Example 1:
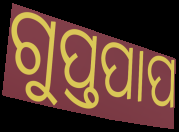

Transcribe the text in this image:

ଗୁପ୍ତପାପ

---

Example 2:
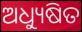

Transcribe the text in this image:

ଅଧ୍ୟୁଷିତ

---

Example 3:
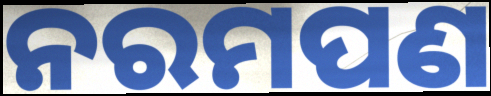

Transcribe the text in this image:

ନରମପଣ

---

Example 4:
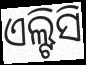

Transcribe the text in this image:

ଏଲ୍ଟିସି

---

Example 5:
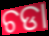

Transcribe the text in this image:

ଚଡା